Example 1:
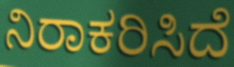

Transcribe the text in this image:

ನಿರಾಕರಿಸಿದೆ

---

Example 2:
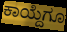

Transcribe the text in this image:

ಕಾಯ್ದೆಗೂ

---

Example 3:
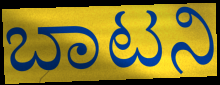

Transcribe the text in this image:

ಬಾಟನಿ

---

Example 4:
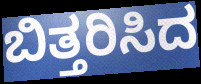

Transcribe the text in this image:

ಬಿತ್ತರಿಸಿದ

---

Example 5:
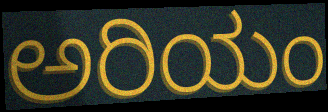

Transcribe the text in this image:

ಅರಿಯಂ